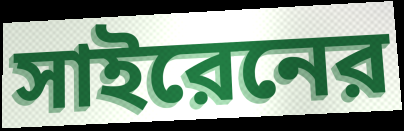
সাইরেনের